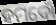
ହମଦୋଁ